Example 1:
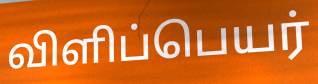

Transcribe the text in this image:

விளிப்பெயர்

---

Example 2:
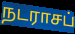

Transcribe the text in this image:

நடராசப்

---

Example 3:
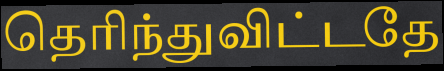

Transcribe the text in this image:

தெரிந்துவிட்டதே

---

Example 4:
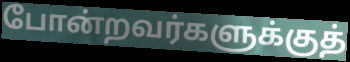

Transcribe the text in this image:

போன்றவர்களுக்குத்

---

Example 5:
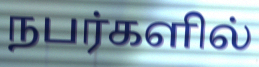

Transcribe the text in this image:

நபர்களில்